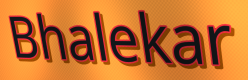
Bhalekar